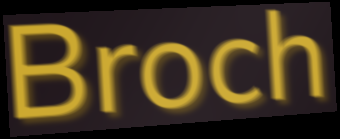
Broch